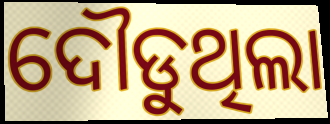
ଦୌଡୁଥିଲା